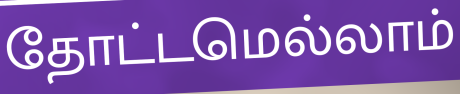
தோட்டமெல்லாம்